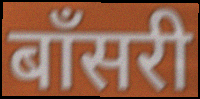
बाँसरी